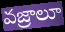
వజ్రాలూ